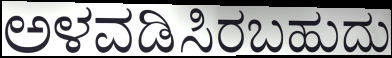
ಅಳವಡಿಸಿರಬಹುದು